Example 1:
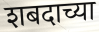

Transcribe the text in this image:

शबदाच्या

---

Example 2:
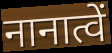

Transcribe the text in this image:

नानात्वें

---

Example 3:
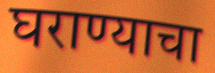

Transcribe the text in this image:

घराण्याचा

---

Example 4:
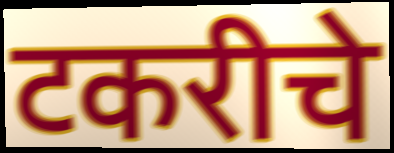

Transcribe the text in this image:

टकरीचे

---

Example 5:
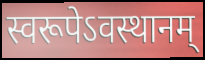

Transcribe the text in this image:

स्वरूपेऽवस्थानम्